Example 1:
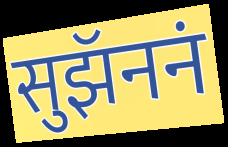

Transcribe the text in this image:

सुझॅननं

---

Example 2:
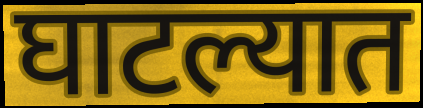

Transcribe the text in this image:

घाटल्यात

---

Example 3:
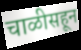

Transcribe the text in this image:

चाळीसहून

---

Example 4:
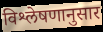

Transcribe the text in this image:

विश्लेषणानुसार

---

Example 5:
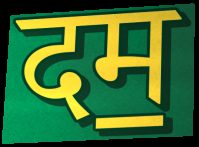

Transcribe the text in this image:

दम॒